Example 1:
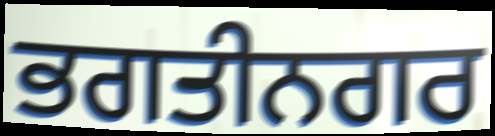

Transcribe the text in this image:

ਭਗਤੀਨਗਰ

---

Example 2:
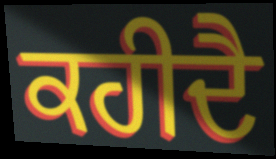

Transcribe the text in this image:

ਕਹੀਦੈ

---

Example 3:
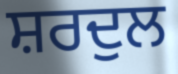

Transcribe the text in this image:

ਸ਼ਰਦੁਲ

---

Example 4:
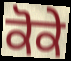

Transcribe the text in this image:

ਕੋਕੇ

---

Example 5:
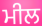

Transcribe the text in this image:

ਮੀਲ